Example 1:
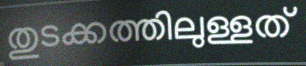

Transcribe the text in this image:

തുടക്കത്തിലുള്ളത്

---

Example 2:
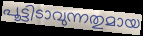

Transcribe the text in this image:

പൂട്ടിടാവുന്നതുമായ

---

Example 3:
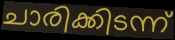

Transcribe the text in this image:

ചാരിക്കിടന്ന്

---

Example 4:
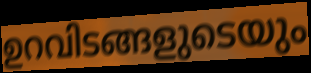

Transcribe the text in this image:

ഉറവിടങ്ങളുടെയും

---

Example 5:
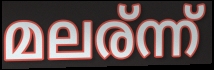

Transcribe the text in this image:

മലര്ന്ന്